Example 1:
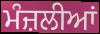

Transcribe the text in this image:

ਮੰਜ਼ਲੀਆਂ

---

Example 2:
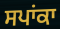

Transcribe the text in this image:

ਸਪਾਂਕਾ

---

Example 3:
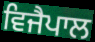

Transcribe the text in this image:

ਵਿਜੈਪਾਲ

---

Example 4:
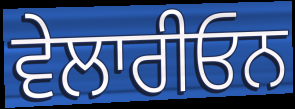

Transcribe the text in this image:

ਵੇਲਾਰੀਓਨ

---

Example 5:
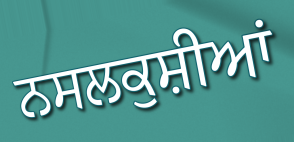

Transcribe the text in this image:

ਨਸਲਕੁਸ਼ੀਆਂ